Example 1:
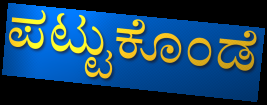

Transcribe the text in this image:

ಪಟ್ಟುಕೊಂಡೆ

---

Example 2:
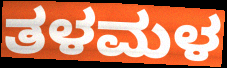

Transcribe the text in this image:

ತಳಮಳ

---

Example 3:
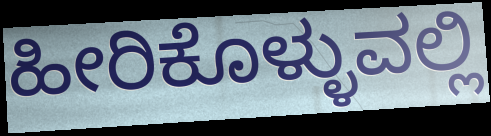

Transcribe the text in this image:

ಹೀರಿಕೊಳ್ಳುವಲ್ಲಿ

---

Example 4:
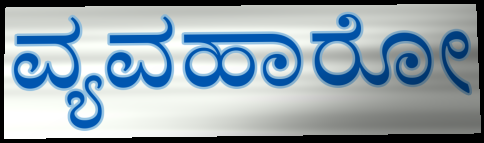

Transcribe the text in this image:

ವ್ಯವಹಾರೋ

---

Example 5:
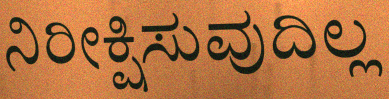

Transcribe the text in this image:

ನಿರೀಕ್ಷಿಸುವುದಿಲ್ಲ